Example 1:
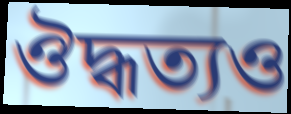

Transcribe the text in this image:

ঔদ্ধত্যও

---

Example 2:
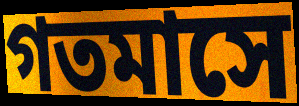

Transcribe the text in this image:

গতমাসে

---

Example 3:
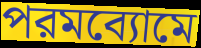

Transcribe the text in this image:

পরমব্যোমে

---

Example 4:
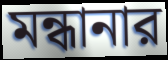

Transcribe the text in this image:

মন্ধানার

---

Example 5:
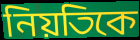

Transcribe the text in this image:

নিয়তিকে